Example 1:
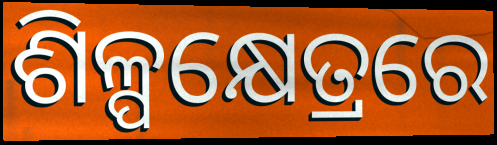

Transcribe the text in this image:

ଶିଳ୍ପକ୍ଷେତ୍ରରେ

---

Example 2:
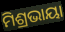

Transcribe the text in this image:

ମିଶ୍ରଭାୟା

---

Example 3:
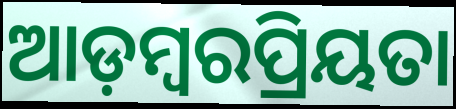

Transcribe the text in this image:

ଆଡ଼ମ୍ବରପ୍ରିୟତା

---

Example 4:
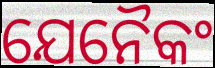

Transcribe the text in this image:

ଯେନୈକଂ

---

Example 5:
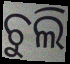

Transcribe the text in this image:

ଚୁଲି